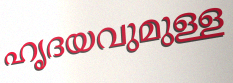
ഹൃദയവുമുള്ള